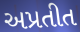
અપ્રતીત